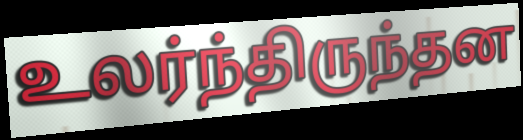
உலர்ந்திருந்தன